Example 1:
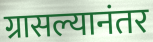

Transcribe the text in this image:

ग्रासल्यानंतर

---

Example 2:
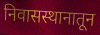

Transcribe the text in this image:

निवासस्थानातून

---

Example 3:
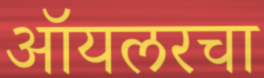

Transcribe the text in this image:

ऑयलरचा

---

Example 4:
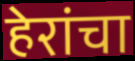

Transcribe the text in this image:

हेरांचा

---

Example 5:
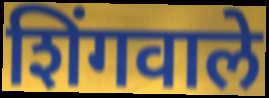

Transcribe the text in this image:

शिंगवाले